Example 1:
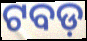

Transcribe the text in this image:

ଟବଡ଼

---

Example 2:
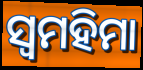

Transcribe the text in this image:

ସ୍ୱମହିମା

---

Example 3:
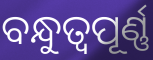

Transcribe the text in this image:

ବନ୍ଧୁତ୍ଵପୂର୍ଣ୍ଣ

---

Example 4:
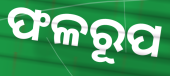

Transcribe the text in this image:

ଫଳରୂପ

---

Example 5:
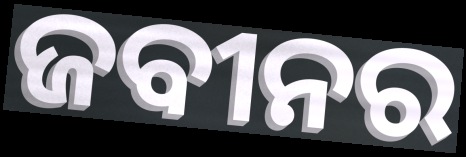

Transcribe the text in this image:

ଜବୀନର